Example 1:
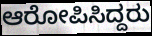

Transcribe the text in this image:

ಆರೋಪಿಸಿದ್ದರು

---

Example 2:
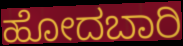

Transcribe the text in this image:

ಹೋದಬಾರಿ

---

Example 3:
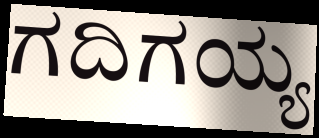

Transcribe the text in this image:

ಗದಿಗಯ್ಯ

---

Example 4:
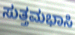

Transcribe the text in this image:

ಸುತ್ತಮಭಾಸಿ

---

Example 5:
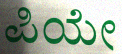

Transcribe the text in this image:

ಪಿಯೇ